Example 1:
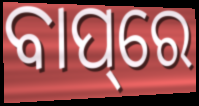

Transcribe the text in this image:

ବାପ୍‌ରେ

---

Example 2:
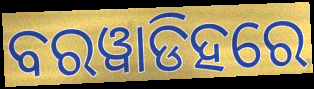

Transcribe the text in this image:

ବରୱାଡିହରେ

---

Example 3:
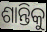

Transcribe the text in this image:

ଶାନ୍ତିକୁ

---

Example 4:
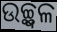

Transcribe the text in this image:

ଉଚ୍ଛ୍ୱଳ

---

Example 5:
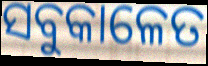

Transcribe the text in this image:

ସବୁକାଳେତ